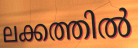
ലക്കത്തിൽ